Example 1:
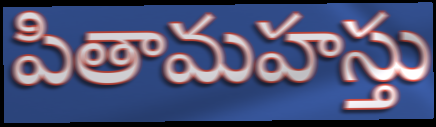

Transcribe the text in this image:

పితామహస్తు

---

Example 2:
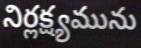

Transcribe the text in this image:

నిర్లక్ష్యమును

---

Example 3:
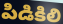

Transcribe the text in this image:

పిడికిలి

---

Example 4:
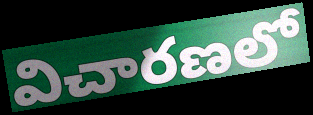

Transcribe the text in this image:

విచారణలో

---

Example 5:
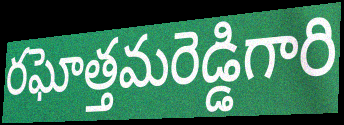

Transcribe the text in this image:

రఘోత్తమరెడ్డిగారి